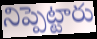
నిప్పెట్టారు